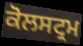
ਕੋਲਸਟ੍ਰਮ